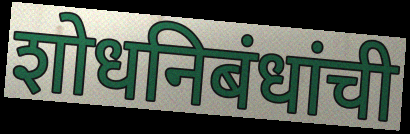
शोधनिबंधांची